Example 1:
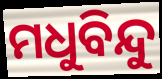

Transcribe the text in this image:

ମଧୁବିନ୍ଦୁ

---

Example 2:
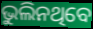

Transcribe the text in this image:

ଭୁଲିନଥିବେ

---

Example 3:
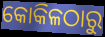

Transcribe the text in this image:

କୋକିଳଠାରୁ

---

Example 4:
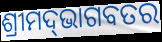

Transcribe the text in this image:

ଶ୍ରୀମଦ୍‌ଭାଗବତର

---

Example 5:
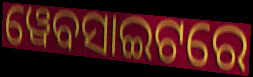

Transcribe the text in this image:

ୱେବସାଇଟରେ